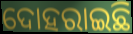
ଦୋହରାଇଛି